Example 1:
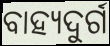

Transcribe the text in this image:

ବାହ୍ୟଦୁର୍ଗ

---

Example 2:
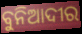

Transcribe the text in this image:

ବୁନିଆଦୀର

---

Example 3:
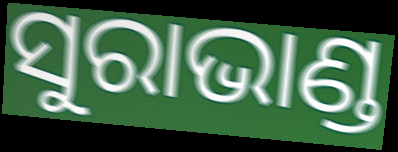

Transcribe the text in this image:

ସୁରାଭାଣ୍ଡ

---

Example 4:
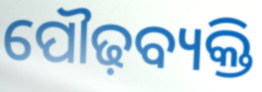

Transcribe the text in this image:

ପୌଢ଼ବ୍ୟକ୍ତି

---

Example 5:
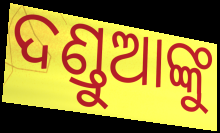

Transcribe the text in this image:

ଦଣ୍ଡୁଆଙ୍କୁ